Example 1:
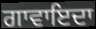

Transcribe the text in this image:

ਗਾਵਾਇਦਾ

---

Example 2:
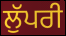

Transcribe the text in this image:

ਲੁੱਪਰੀ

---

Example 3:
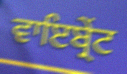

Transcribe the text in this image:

ਵਾਇਬ੍ਰੇਂਟ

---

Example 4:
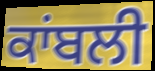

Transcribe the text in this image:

ਕਾਂਬਲੀ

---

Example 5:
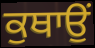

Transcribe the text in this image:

ਕੁਥਾਉਂ